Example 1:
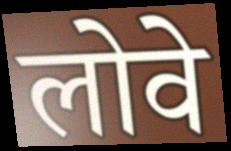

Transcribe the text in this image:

लोवे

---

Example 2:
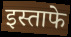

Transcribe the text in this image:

इस्ताफे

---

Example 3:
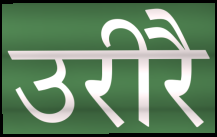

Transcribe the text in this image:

उरीरै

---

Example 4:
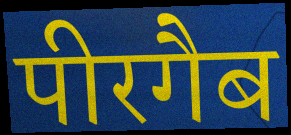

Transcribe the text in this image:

पीरगैब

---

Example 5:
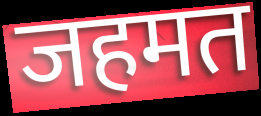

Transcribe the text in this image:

जहमत